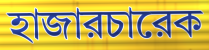
হাজারচারেক